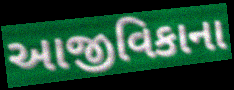
આજીવિકાના